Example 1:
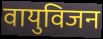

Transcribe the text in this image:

वायुविजन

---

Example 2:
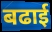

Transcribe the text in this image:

बढाई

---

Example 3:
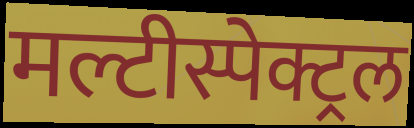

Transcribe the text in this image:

मल्टीस्पेक्ट्रल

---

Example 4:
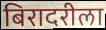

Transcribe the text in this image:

बिरादरीला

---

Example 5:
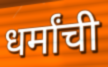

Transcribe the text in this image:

धर्मांची